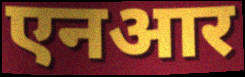
एनआर